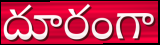
దూరంగా